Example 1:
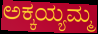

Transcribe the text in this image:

ಅಕ್ಕಯ್ಯಮ್ಮ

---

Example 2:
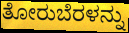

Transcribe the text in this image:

ತೋರುಬೆರಳನ್ನು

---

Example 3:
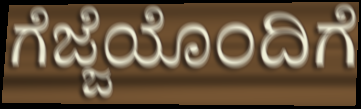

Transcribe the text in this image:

ಗೆಜ್ಜೆಯೊಂದಿಗೆ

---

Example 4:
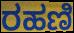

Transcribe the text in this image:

ರಹಣಿ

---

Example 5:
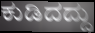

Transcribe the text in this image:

ಕುಡಿದದ್ದು